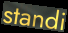
standi